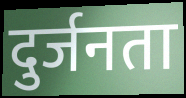
दुर्जनता